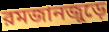
রমজানজুড়ে